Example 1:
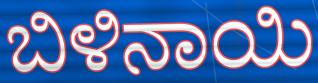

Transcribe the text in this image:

ಬಿಳಿನಾಯಿ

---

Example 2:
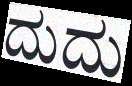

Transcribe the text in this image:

ದುದು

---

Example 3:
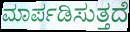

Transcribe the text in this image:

ಮಾರ್ಪಡಿಸುತ್ತದೆ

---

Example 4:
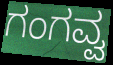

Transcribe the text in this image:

ಗಂಗವ್ವ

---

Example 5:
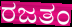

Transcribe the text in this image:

ರಜತಂ